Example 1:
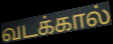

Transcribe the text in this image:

வடக்கால்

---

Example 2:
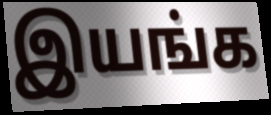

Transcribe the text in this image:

இயங்க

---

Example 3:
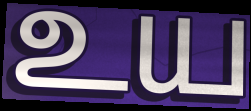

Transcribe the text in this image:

உய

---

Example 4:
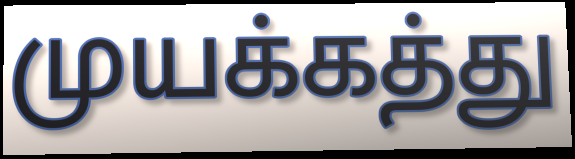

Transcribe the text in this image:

முயக்கத்து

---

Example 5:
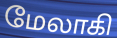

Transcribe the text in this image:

மேலாகி